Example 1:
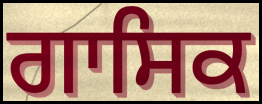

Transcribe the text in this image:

ਗਾਸਿਕ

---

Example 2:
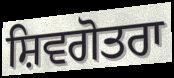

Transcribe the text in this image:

ਸ਼ਿਵਗੋਤਰਾ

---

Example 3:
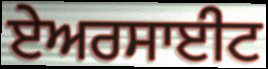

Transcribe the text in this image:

ਏਅਰਸਾਈਟ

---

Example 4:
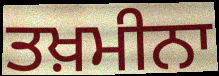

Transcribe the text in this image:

ਤਖ਼ਮੀਨਾ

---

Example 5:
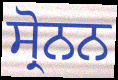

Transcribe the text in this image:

ਸ੍ਰੋਨਨ